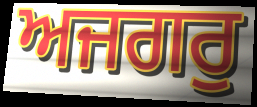
ਅਜਗਰੁ